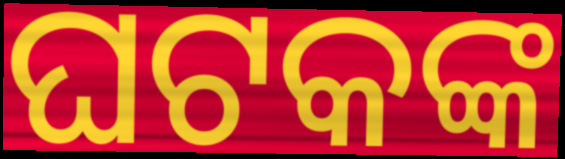
ଘଟକଙ୍କ